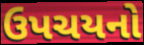
ઉપચયનો